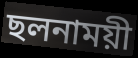
ছলনাময়ী